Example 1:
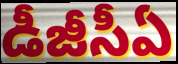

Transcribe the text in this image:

డీజీసీఏ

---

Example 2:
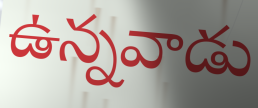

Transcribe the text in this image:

ఉన్నవాడు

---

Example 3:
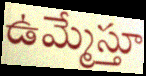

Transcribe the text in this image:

ఉమ్మేస్తూ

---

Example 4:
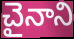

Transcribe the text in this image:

చైనాని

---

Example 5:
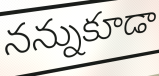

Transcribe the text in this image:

నన్నుకూడా